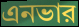
এনভার